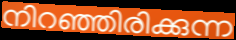
നിറഞ്ഞിരിക്കുന്ന